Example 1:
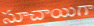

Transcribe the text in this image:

సూచాయిగా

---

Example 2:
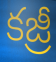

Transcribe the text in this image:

కజ్రీ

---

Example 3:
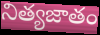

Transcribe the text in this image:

నిత్యజాతం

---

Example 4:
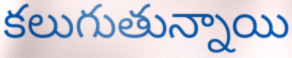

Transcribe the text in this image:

కలుగుతున్నాయి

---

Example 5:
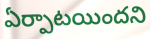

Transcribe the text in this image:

ఏర్పాటయిందని